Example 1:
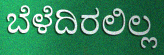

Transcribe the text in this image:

ಬೆಳೆದಿರಲಿಲ್ಲ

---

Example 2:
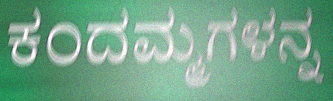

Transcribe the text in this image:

ಕಂದಮ್ಮಗಳನ್ನ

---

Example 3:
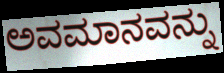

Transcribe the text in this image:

ಅವಮಾನವನ್ನು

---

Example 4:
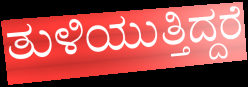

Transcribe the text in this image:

ತುಳಿಯುತ್ತಿದ್ದರೆ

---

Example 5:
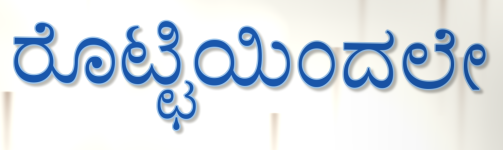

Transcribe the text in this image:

ರೊಟ್ಟಿಯಿಂದಲೇ